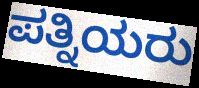
ಪತ್ನಿಯರು